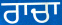
ਰਾਚਾ